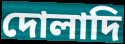
দোলাদি